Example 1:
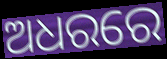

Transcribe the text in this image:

ଅଧରରେ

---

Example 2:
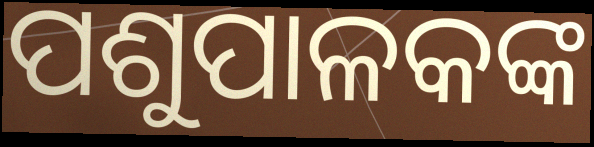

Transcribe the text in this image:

ପଶୁପାଳକଙ୍କ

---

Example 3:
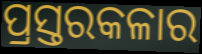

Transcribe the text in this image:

ପ୍ରସ୍ତରକଳାର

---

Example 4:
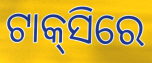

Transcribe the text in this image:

ଟାକ୍‌ସିରେ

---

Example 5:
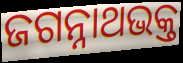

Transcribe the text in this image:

ଜଗନ୍ନାଥଭକ୍ତ